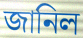
জানিল